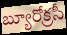
బ్యూరోక్రసీ